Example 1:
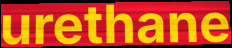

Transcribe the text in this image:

urethane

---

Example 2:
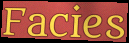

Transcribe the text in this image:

Facies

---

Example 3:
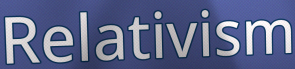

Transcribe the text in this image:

Relativism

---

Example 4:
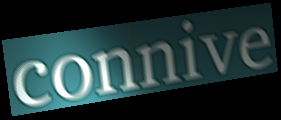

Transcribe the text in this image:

connive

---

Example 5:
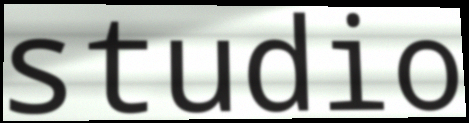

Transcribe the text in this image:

studio